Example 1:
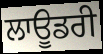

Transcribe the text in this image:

ਲਾਊਡਰੀ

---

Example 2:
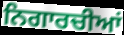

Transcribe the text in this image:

ਨਿਗਾਰਚੀਆਂ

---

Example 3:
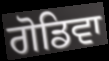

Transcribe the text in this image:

ਗੋਡਿਵਾ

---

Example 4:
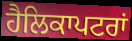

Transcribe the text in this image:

ਹੈਲਿਕਾਪਟਰਾਂ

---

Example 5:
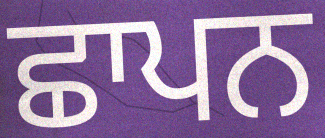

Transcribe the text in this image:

ਛਾਪਨ